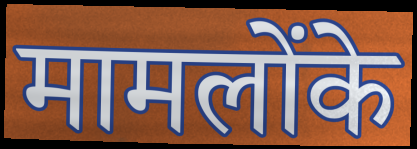
मामलोंके